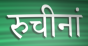
रुचीनां